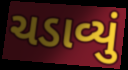
ચડાવ્યું